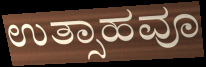
ಉತ್ಸಾಹವೂ